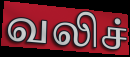
வலிச்